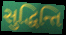
સુદ્ધિન્તિ